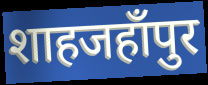
शाहजहाँपुर